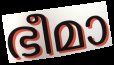
ഭീമാ